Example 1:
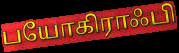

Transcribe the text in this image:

பயோகிராஃபி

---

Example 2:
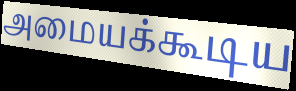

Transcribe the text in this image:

அமையக்கூடிய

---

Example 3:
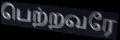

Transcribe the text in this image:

பெற்றவரே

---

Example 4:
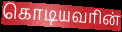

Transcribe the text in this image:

கொடியவரின்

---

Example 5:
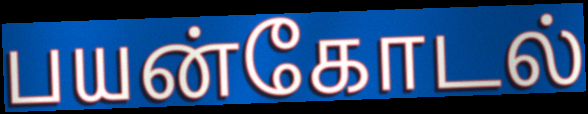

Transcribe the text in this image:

பயன்கோடல்